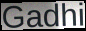
Gadhi